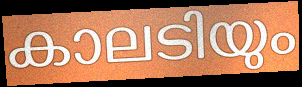
കാലടിയും